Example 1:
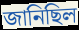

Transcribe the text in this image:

জানিছিল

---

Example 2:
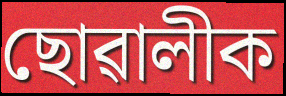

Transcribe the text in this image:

ছোৱালীক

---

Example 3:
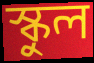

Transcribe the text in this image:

স্কুল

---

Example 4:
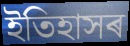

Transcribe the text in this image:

ইতিহাসৰ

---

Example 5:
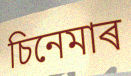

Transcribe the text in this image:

চিনেমাৰ